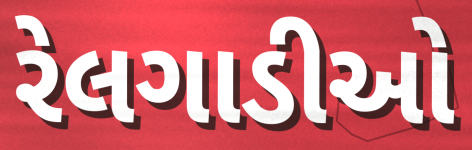
રેલગાડીઓ